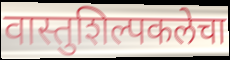
वास्तुशिल्पकलेचा